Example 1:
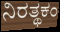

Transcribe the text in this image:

ನಿರತ್ಥಕಂ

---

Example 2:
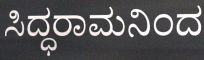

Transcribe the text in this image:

ಸಿದ್ಧರಾಮನಿಂದ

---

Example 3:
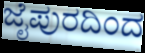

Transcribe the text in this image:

ಜೈಪುರದಿಂದ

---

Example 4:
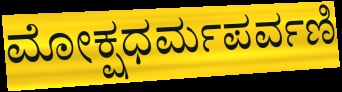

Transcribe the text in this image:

ಮೋಕ್ಷಧರ್ಮಪರ್ವಣಿ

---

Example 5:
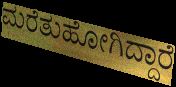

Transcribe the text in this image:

ಮರೆತುಹೋಗಿದ್ದಾರೆ